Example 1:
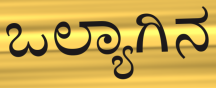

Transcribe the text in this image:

ಒಲ್ಯಾಗಿನ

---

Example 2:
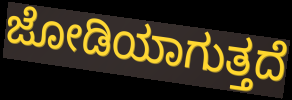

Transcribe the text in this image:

ಜೋಡಿಯಾಗುತ್ತದೆ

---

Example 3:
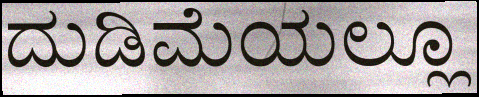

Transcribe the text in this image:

ದುಡಿಮೆಯಲ್ಲೂ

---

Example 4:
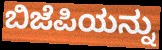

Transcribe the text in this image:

ಬಿಜೆಪಿಯನ್ನು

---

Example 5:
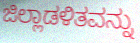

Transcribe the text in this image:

ಜಿಲ್ಲಾಡಳಿತವನ್ನು